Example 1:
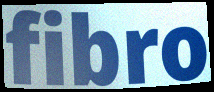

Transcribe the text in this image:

fibro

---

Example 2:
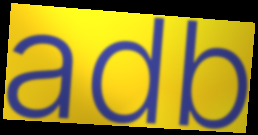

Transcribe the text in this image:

adb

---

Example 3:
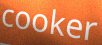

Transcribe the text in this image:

cooker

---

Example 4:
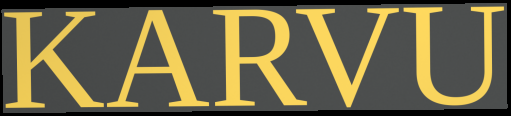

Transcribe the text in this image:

KARVU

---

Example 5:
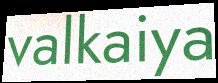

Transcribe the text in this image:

valkaiya